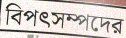
বিপৎসম্পদের